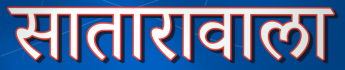
सातारावाला